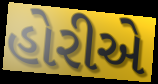
હોરીએ